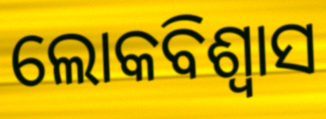
ଲୋକବିଶ୍ୱାସ